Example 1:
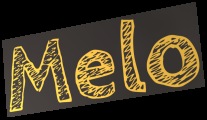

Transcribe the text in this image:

Melo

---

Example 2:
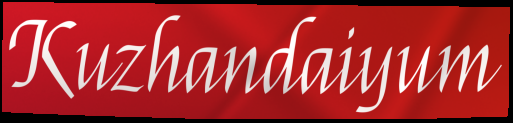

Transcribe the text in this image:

Kuzhandaiyum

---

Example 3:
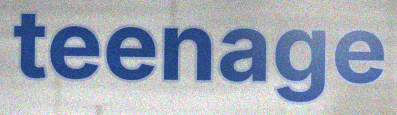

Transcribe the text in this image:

teenage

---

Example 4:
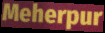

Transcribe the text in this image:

Meherpur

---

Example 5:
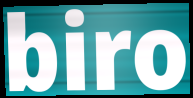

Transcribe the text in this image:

biro